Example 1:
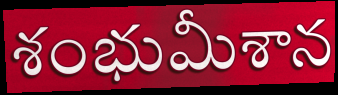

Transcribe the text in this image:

శంభుమీశాన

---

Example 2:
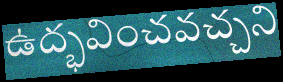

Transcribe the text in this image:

ఉద్భవించవచ్చని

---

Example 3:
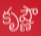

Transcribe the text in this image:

కృష్ణౌ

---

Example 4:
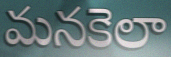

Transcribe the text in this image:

మనకెలా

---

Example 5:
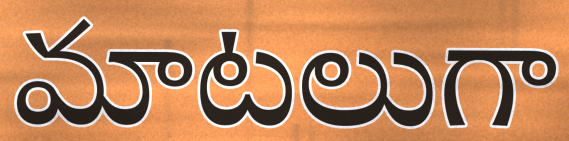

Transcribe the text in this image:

మాటలుగా